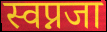
स्वप्नजा